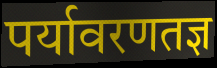
पर्यावरणतज्ञ